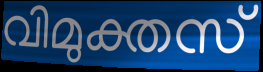
വിമുക്തസ്